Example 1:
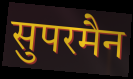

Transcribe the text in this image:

सुपरमैन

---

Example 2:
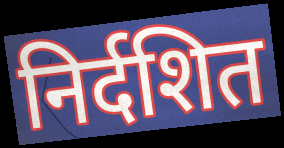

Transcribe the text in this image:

निर्दशित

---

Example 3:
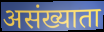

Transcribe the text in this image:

असंख्याता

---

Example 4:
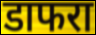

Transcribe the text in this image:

डाफरा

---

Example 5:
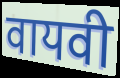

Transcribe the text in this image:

वायवी